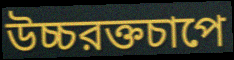
উচ্চরক্তচাপে